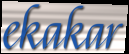
ekakar